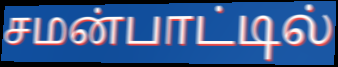
சமன்பாட்டில்